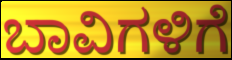
ಬಾವಿಗಳಿಗೆ